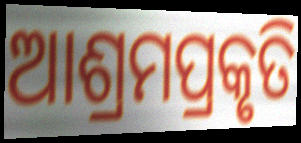
ଆଶ୍ରମପ୍ରକୃତି